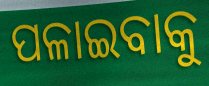
ପଳାଇବାକୁ